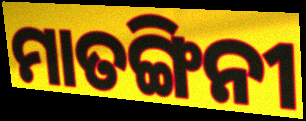
ମାତଙ୍ଗିନୀ